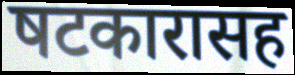
षटकारासह